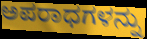
ಅಪರಾಧಗಳನ್ನು